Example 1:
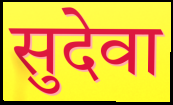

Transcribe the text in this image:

सुदेवा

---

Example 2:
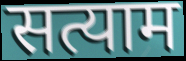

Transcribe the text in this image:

सत्याम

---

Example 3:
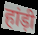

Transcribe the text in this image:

हांड़ी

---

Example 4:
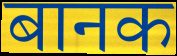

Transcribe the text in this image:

बानक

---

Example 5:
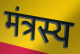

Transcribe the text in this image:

मंत्रस्य